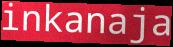
inkanaja